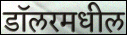
डॉलरमधील